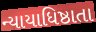
ન્યાયાધિષ્ઠાતા